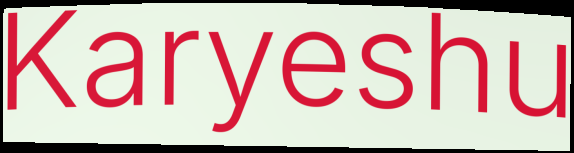
Karyeshu